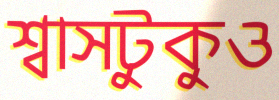
শ্বাসটুকুও